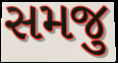
સમજુ